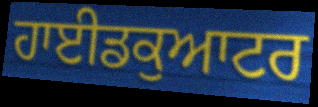
ਹਾਈਡਕੁਆਟਰ